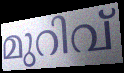
മുറിവ്